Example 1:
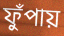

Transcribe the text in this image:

ফুঁপায়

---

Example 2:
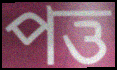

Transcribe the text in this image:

পত্ত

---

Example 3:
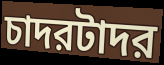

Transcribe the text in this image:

চাদরটাদর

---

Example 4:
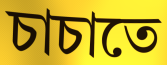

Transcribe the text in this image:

চাচাতে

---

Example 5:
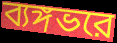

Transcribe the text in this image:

ব্যঙ্গভরে